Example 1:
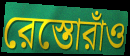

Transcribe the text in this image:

রেস্তোরাঁও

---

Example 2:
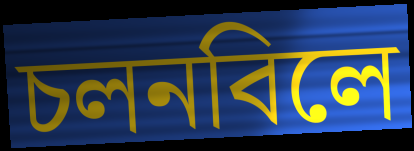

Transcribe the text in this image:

চলনবিলে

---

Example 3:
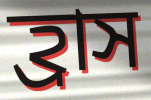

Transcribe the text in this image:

হ্রাস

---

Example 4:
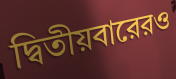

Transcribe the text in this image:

দ্বিতীয়বারেরও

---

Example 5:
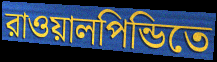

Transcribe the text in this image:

রাওয়ালপিন্ডিতে